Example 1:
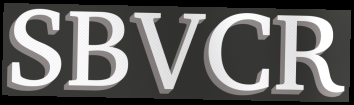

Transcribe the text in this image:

SBVCR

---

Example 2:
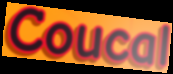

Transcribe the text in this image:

Coucal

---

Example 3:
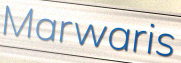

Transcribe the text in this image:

Marwaris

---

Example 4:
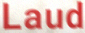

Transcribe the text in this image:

Laud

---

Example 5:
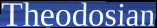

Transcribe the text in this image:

Theodosian